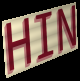
HIN